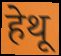
हेथू